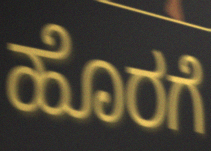
ಹೊರಗೆ